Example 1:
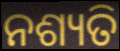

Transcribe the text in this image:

ନଶ୍ୟତି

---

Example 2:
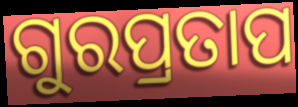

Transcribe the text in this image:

ଗୁରପ୍ରତାପ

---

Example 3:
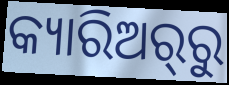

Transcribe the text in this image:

କ୍ୟାରିଅର୍‌ରୁ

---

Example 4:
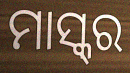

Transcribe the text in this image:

ମାସ୍କ୍‌ର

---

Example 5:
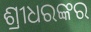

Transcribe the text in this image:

ଶ୍ରୀଧରଙ୍କର